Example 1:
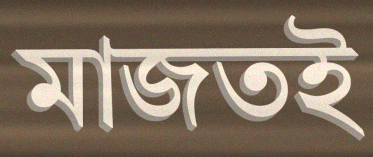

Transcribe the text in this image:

মাজতই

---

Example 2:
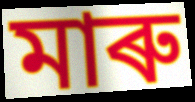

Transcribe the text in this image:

মাৰু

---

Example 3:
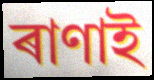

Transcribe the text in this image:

ৰাণাই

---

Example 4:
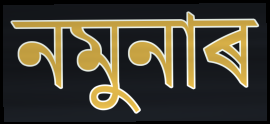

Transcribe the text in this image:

নমুনাৰ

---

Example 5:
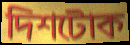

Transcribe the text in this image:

দিশটোক